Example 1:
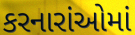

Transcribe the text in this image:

કરનારાંઓમાં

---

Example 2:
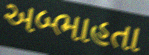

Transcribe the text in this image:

અબ્ભાહતા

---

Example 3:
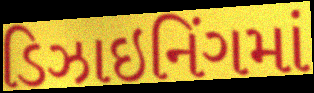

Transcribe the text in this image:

ડિઝાઇનિંગમાં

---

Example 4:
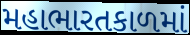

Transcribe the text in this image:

મહાભારતકાળમાં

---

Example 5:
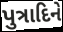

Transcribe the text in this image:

પુત્રાદિને